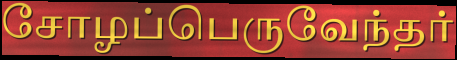
சோழப்பெருவேந்தர்